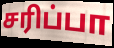
சரிப்பா